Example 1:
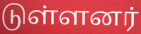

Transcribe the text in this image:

டுள்ளனர்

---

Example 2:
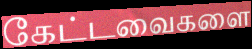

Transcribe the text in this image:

கேட்டவைகளை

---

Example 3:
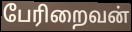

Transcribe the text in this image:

பேரிறைவன்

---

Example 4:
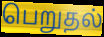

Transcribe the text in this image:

பெறுதல்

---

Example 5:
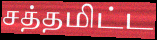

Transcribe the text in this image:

சத்தமிட்ட